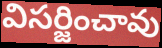
విసర్జించావు